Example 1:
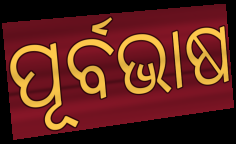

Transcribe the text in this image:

ପୂର୍ବଭାଷ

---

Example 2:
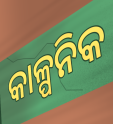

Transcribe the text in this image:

କାଳ୍ପନିକ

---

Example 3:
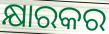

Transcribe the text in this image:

କ୍ଷାରକର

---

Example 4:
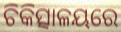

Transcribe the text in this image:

ଚିକିତ୍ସାଳୟରେ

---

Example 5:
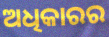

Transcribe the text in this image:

ଅଧିକାରର